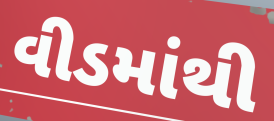
વીડમાંથી